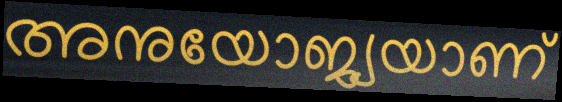
അനുയോജ്യയാണ്